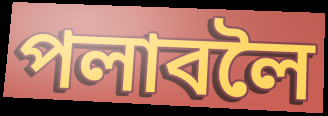
পলাবলৈ